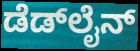
ಡೆಡ್‍ಲೈನ್